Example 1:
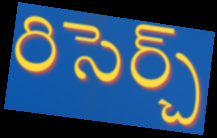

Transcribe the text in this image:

రిసెర్చ్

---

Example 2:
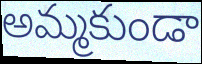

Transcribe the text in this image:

అమ్మకుండా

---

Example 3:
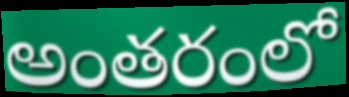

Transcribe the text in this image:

అంతరంలో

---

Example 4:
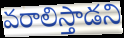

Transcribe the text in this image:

వరాలిస్తాడని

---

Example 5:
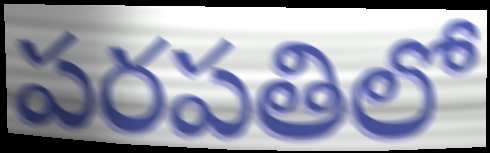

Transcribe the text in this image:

పరపతిలో